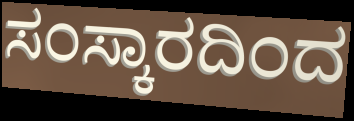
ಸಂಸ್ಕಾರದಿಂದ